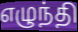
எழுந்தி